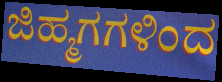
ಜಿಹ್ಮಗಗಳಿಂದ